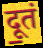
दू॒तं